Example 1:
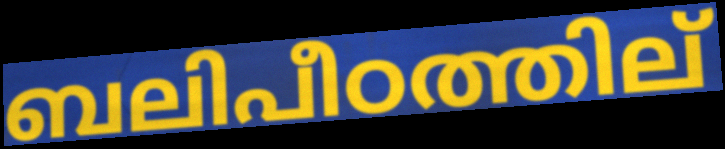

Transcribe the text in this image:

ബലിപീഠത്തില്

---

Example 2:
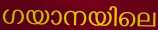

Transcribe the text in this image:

ഗയാനയിലെ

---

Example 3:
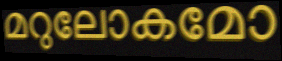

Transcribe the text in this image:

മറുലോകമോ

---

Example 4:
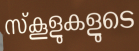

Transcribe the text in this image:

സ്‌കൂളുകളുടെ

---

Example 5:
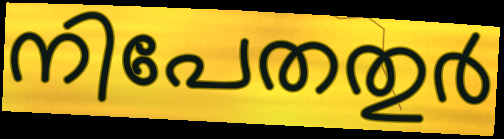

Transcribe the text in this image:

നിപേതതുർ